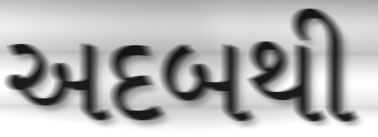
અદબથી